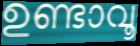
ഉണ്ടാവൂ